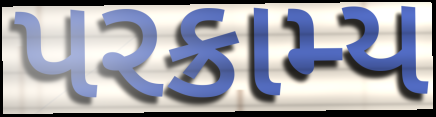
પરક્રામ્ય